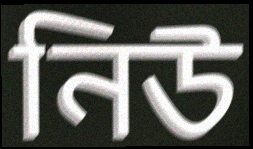
নিউ